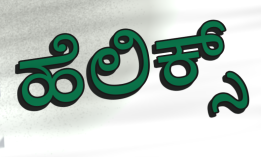
ಹೆಲಿಕ್ಸ್